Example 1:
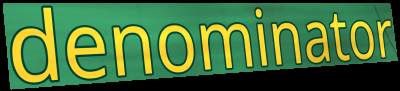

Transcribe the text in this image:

denominator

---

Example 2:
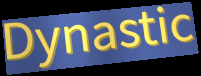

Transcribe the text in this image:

Dynastic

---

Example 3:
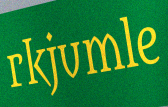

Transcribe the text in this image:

rkjumle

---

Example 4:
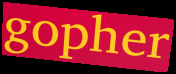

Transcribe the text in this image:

gopher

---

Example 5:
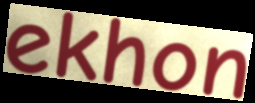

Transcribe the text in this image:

ekhon